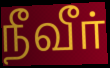
நீவீர்